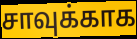
சாவுக்காக